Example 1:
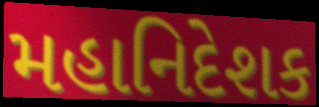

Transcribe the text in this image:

મહાનિદેશક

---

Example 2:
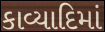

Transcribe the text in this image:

કાવ્યાદિમાં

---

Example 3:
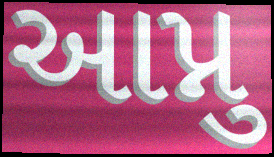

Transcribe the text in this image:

આપ્નુ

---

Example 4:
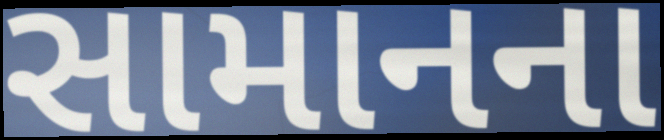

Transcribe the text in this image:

સામાનના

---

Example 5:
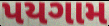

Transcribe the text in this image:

પયગામ